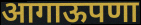
आगाऊपणा